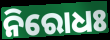
ନିରୋଧଃ